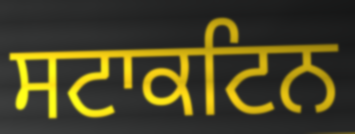
ਸਟਾਕਟਿਨ